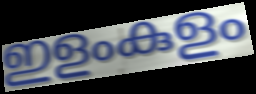
ഇളംകുളം